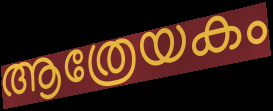
ആത്രേയകം